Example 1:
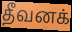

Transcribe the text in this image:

தீவனக்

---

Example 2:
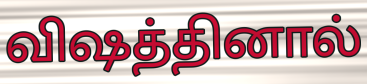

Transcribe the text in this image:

விஷத்தினால்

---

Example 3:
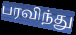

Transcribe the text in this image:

பரவிந்து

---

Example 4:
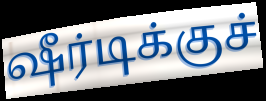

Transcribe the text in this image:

ஷீர்டிக்குச்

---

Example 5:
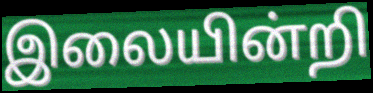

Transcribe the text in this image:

இலையின்றி